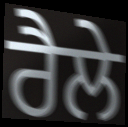
ਰੈਲੇ